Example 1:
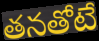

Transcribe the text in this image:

తనతోటే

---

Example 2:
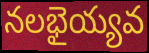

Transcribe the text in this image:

నలభైయ్యవ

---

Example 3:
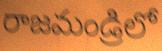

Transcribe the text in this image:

రాజమండ్రిలో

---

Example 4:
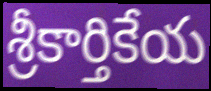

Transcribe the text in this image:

శ్రీకార్తికేయ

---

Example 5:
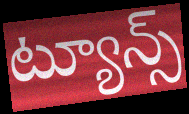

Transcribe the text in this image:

ట్యూన్స్